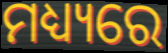
ମଧ୍ୟ୍ୟରେ